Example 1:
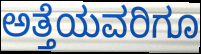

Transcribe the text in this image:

ಅತ್ತೆಯವರಿಗೂ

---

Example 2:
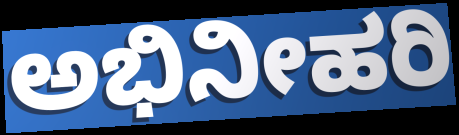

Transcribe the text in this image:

ಅಭಿನೀಹರಿ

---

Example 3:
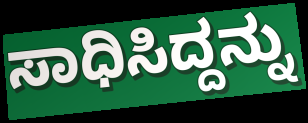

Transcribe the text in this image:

ಸಾಧಿಸಿದ್ದನ್ನು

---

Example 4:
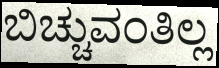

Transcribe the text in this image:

ಬಿಚ್ಚುವಂತಿಲ್ಲ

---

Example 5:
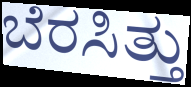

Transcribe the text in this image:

ಬೆರಸಿತ್ತು